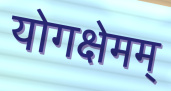
योगक्षेमम्